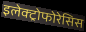
इलेक्ट्रोफोरेसिस